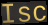
Isc